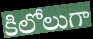
కిలోలుగా